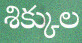
శిక్కుల